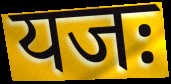
यजः